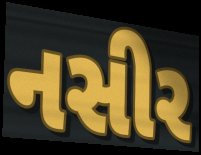
નસીર